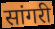
सांगरी